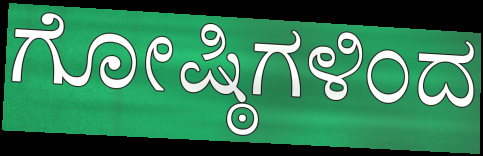
ಗೋಷ್ಠಿಗಳಿಂದ